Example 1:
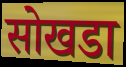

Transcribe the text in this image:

सोखडा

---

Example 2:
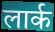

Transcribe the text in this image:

लार्क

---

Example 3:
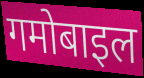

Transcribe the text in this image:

गमोबाइल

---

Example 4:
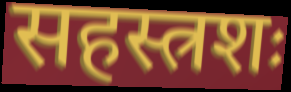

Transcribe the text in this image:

सहस्त्रशः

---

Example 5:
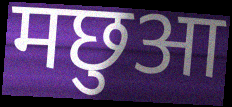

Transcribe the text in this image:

मछुआ